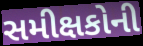
સમીક્ષકોની